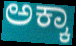
ಅಕ್ಕಾ